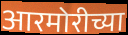
आरमोरीच्या